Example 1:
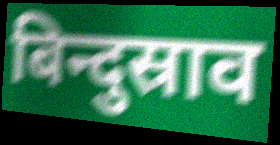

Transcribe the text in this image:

बिन्दुस्राव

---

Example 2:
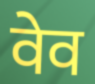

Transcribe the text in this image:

वेव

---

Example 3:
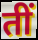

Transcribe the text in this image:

तीं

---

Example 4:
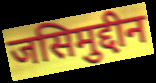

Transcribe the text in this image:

जसिमुद्दीन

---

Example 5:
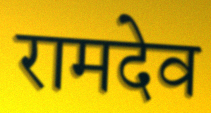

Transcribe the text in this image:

रामदेव